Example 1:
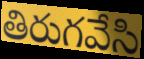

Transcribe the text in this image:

తిరుగవేసి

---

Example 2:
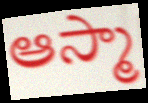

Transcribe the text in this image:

ఆస్మా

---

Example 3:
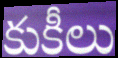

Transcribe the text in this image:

కుకీలు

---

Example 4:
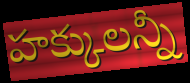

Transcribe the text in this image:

హక్కులన్నీ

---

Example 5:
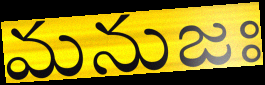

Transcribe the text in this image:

మనుజః